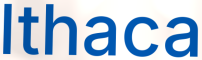
Ithaca